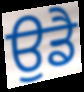
ਉਡੈ